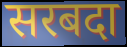
सरबदा